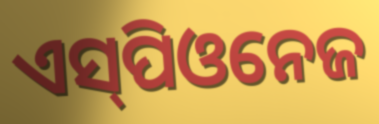
ଏସ୍‌ପିଓନେଜ